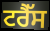
ਟਰੈੱਸ